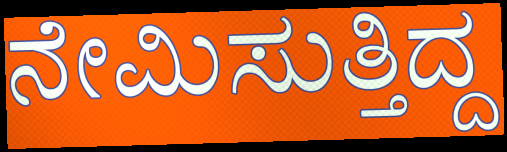
ನೇಮಿಸುತ್ತಿದ್ದ